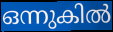
ഒന്നുകിൽ